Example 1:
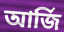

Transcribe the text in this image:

আর্জি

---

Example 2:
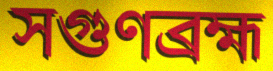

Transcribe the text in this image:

সগুণব্রহ্ম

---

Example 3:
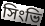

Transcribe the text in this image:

সিংভি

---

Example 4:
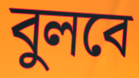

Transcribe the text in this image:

বুলবে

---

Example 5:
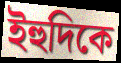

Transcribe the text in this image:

ইহুদিকে